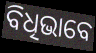
ବିଧିଭାବେ